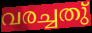
വരച്ചതു്